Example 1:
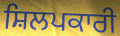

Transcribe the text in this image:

ਸ਼ਿਲਪਕਾਰੀ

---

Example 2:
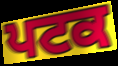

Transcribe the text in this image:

ਪਟਕ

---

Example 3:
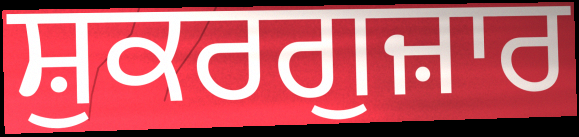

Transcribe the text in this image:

ਸ਼ੁਕਰਗੁਜ਼ਾਰ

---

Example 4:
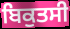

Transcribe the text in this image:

ਬਿਕੁਤਸੀ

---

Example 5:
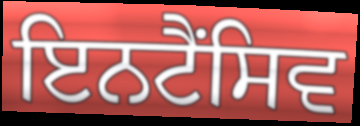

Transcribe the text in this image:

ਇਨਟੈਂਸਿਵ